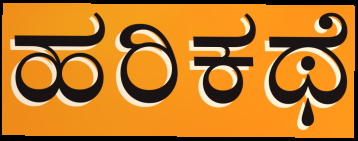
ಹರಿಕಥೆ